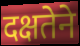
दक्षतेने